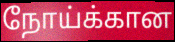
நோய்க்கான